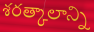
శరత్కాలాన్ని